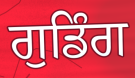
ਗੁਡਿੰਗ